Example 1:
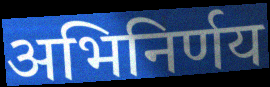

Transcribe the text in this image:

अभिनिर्णय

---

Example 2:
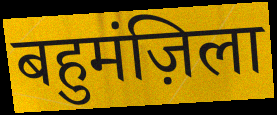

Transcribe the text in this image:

बहुमंज़िला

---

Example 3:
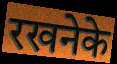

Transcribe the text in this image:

रखनेके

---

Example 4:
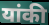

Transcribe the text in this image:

यांकी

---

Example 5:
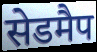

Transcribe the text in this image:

सेडमैप